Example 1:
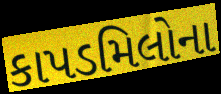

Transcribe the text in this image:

કાપડમિલોના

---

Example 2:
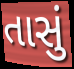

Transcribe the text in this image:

તાસું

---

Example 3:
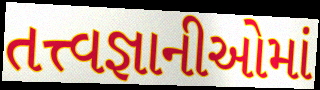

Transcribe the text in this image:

તત્ત્વજ્ઞાનીઓમાં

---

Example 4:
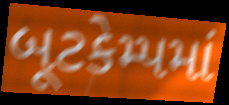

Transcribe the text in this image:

બૂટકેમ્પમાં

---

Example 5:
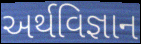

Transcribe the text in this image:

અર્થવિજ્ઞાન